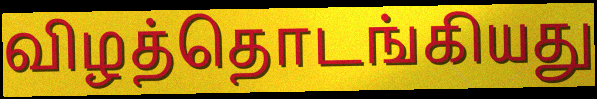
விழத்தொடங்கியது